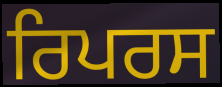
ਰਿਪਰਸ